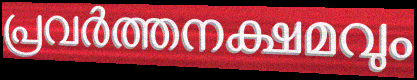
പ്രവർത്തനക്ഷമവും